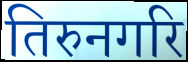
तिरुनगरि